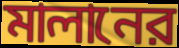
মালানের